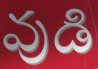
వుడి